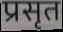
प्रसृत